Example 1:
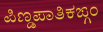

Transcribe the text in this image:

ಪಿಣ್ಡಪಾತಿಕಙ್ಗಂ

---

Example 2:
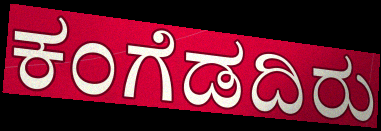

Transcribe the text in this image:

ಕಂಗೆಡದಿರು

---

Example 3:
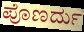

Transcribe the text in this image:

ಪೊಣರ್ದು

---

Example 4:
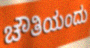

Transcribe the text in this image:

ಚೌತಿಯಂದು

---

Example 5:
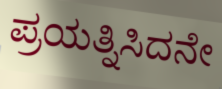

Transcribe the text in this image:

ಪ್ರಯತ್ನಿಸಿದನೇ